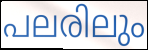
പലരിലും